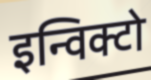
इन्विक्टो